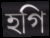
হগি